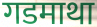
गडमाथा